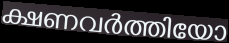
ക്ഷണവർത്തിയോ